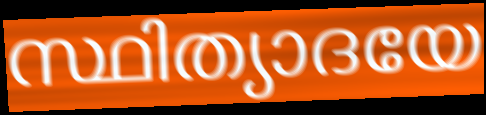
സ്ഥിത്യാദയേ